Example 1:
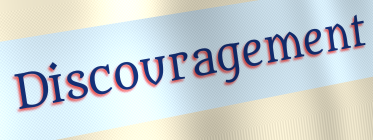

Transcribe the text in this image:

Discouragement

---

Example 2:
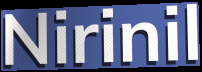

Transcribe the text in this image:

Nirinil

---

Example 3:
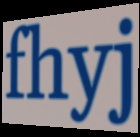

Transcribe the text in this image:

fhyj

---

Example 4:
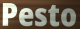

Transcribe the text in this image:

Pesto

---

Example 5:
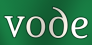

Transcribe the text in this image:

vode